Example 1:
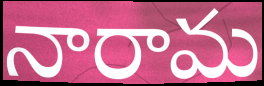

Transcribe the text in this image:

నారామ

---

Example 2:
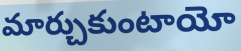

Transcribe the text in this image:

మార్చుకుంటాయో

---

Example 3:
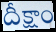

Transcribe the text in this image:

దీక్షాం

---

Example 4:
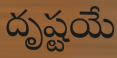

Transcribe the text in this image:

దృష్టయే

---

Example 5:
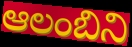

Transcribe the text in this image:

ఆలంబిని